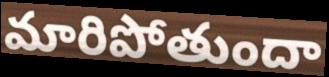
మారిపోతుందా